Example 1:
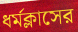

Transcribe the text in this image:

ধর্মক্লাসের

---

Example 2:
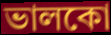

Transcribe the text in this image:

ভালকো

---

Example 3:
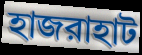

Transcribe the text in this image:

হাজরাহাট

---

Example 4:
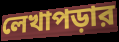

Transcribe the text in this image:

লেখাপড়ার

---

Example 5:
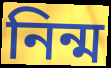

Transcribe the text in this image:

নিন্ম